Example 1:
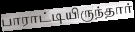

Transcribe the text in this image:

பாராட்டியிருந்தார்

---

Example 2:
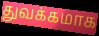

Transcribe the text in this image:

துவக்கமாக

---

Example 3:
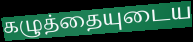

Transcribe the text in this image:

கழுத்தையுடைய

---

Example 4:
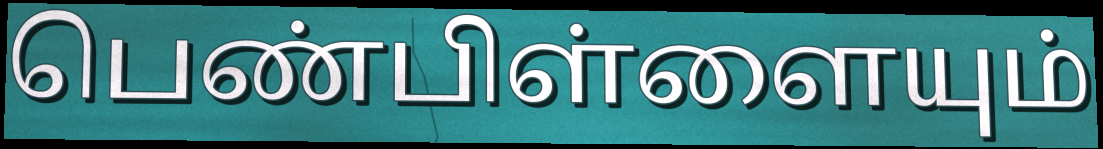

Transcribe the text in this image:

பெண்பிள்ளையும்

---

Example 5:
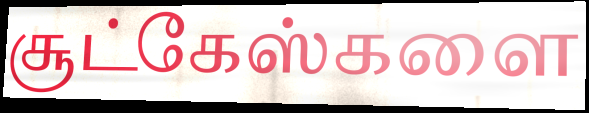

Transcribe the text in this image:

சூட்கேஸ்களை